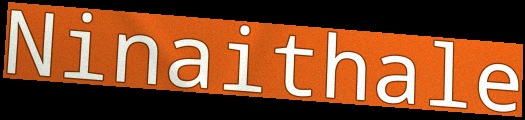
Ninaithale